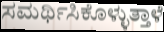
ಸಮರ್ಥಿಸಿಕೊಳ್ಳುತ್ತಾಳೆ